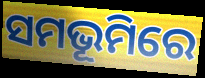
ସମଭୂମିରେ